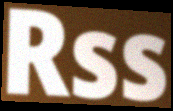
Rss